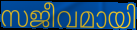
സജീവമായി